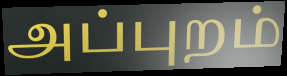
அப்புறம்